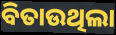
ବିତାଉଥିଲା